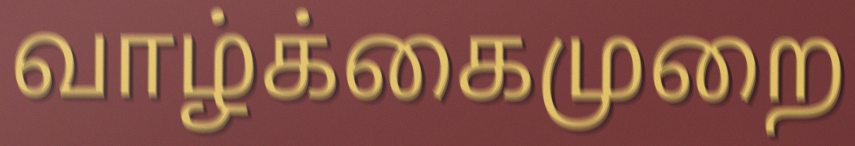
வாழ்க்கைமுறை